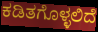
ಕಡಿತಗೊಳ್ಳಲಿದೆ